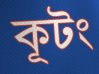
কূটং